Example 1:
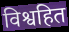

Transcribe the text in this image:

विश्वहित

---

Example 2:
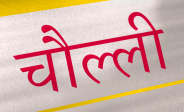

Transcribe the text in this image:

चौल्ली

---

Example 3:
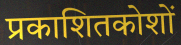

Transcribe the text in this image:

प्रकाशितकोशों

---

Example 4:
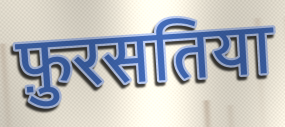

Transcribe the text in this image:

फ़ुरसतिया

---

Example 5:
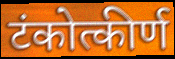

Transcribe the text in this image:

टंकोत्कीर्ण